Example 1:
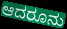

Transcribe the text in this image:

ಆದರೂನು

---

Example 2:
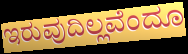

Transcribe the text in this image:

ಇರುವುದಿಲ್ಲವೆಂದೂ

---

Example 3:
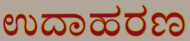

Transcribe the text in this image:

ಉದಾಹರಣ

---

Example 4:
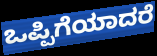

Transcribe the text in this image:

ಒಪ್ಪಿಗೆಯಾದರೆ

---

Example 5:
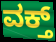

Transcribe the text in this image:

ವಕ್ತ್